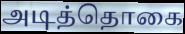
அடித்தொகை